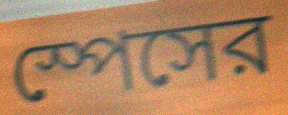
স্পেসের